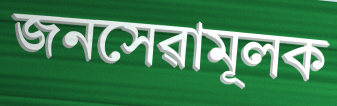
জনসেৱামূলক